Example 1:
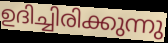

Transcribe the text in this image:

ഉദിച്ചിരിക്കുന്നു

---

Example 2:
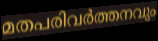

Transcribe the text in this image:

മതപരിവർത്തനവും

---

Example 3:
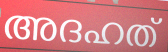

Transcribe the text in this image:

അദഹത്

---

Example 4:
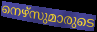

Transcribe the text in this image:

നെഴ്സുമാരുടെ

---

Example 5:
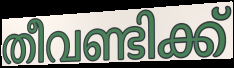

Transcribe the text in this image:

തീവണ്ടിക്ക്